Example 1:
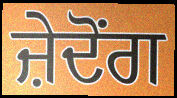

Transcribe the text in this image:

ਜ਼ੇਦੋਂਗ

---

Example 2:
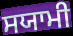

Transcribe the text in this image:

ਸਯਾਮੀ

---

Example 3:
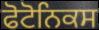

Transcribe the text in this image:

ਫੋਟੋਨਿਕਸ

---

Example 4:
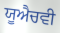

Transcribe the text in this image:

ਯੂਐਚਵੀ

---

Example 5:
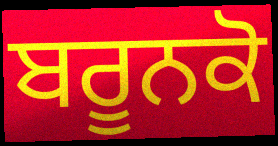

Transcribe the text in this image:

ਬਰੂਨਕੋ